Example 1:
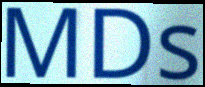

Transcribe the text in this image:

MDs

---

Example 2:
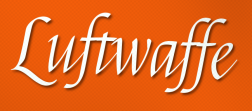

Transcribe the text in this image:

Luftwaffe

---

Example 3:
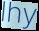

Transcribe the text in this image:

lhy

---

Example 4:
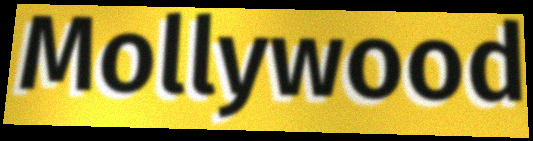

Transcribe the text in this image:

Mollywood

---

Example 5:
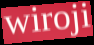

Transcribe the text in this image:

wiroji